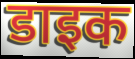
डाइक